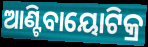
ଆଣ୍ଟିବାୟୋଟିକ୍ର